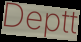
Deptt